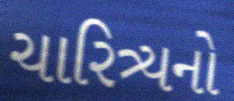
ચારિત્ર્યનો